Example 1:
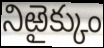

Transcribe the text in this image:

నిఱైక్కుం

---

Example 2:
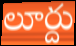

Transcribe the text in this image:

లూర్దు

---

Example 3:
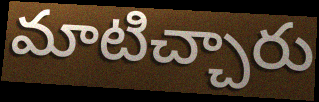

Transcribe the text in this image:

మాటిచ్చారు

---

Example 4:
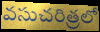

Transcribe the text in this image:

వసుచరిత్రలో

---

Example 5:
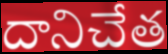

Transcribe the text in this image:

దానిచేత